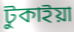
টুকাইয়া